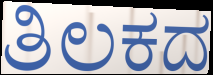
ತಿಲಕದ